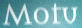
Motu